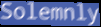
Solemnly